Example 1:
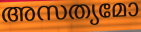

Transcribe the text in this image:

അസത്യമോ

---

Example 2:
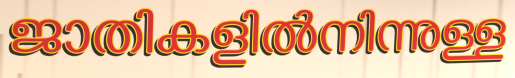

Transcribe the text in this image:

ജാതികളിൽനിന്നുള്ള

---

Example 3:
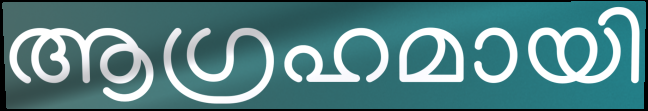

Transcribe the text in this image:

ആഗ്രഹമായി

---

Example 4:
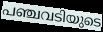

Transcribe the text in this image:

പഞ്ചവടിയുടെ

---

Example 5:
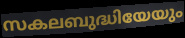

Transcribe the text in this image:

സകലബുദ്ധിയേയും